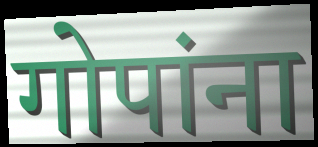
गोपांना